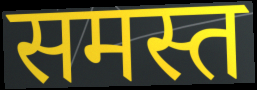
समस्त